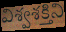
విశ్వశక్తిని